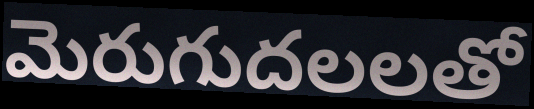
మెరుగుదలలతో